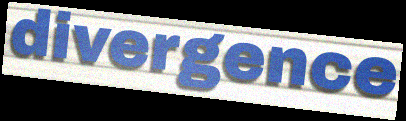
divergence